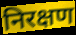
निरक्षण